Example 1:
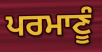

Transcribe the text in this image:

ਪਰਮਾਣੂੰ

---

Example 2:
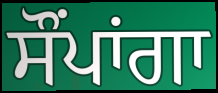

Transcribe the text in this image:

ਸੌਂਪਾਂਗਾ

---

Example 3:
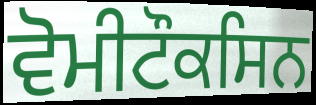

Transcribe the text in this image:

ਵੋਮੀਟੌਕਸਿਨ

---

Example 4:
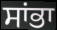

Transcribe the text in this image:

ਸਾਂਭਾ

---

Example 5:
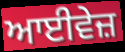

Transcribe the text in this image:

ਆਈਵੇਜ਼